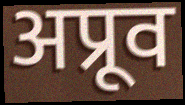
अप्रूव